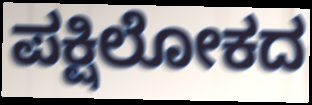
ಪಕ್ಷಿಲೋಕದ